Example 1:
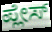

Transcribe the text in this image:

ಪ್ಲೇಸ್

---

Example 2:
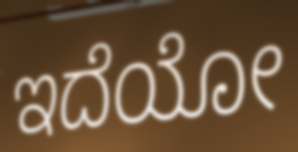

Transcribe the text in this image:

ಇದೆಯೋ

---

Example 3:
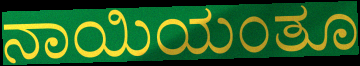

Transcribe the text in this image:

ನಾಯಿಯಂತೂ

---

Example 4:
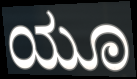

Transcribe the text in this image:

ಯೂ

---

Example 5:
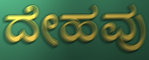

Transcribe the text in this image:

ದೇಹವು